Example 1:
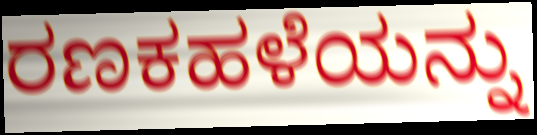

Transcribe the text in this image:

ರಣಕಹಳೆಯನ್ನು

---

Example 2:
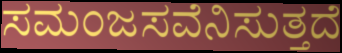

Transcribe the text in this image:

ಸಮಂಜಸವೆನಿಸುತ್ತದೆ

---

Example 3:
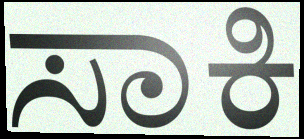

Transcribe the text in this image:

ಸಾಕಿ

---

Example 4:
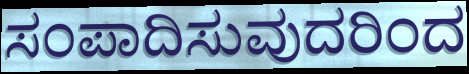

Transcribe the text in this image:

ಸಂಪಾದಿಸುವುದರಿಂದ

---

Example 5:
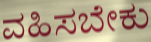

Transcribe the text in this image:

ವಹಿಸಬೇಕು